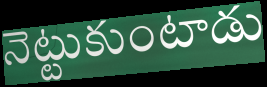
నెట్టుకుంటాడు